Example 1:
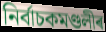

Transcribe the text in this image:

নিৰ্বাচকমণ্ডলীৰ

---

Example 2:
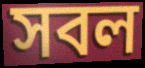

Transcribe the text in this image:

সবল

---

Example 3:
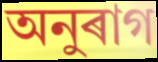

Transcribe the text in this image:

অনুৰাগ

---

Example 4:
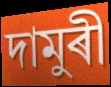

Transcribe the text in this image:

দামুৰী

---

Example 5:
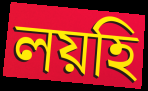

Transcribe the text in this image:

লয়হি